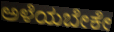
ಅಳೆಯಬೇಕೇ